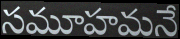
సమూహమనే